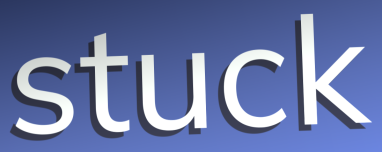
stuck